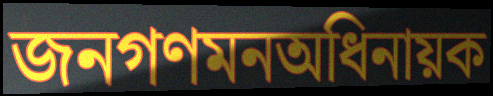
জনগণমনঅধিনায়ক